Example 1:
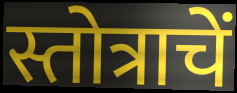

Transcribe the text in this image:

स्तोत्राचें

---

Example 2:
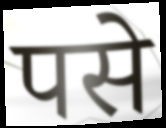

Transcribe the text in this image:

पसे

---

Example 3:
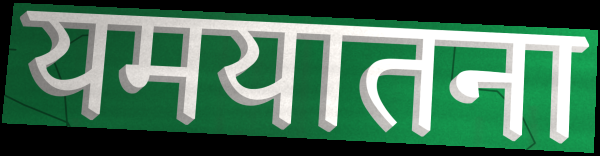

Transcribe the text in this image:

यमयातना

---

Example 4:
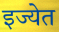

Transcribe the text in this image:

इज्येत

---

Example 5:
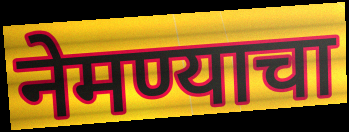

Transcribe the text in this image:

नेमण्याचा